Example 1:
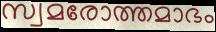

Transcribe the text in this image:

സ്വമരോത്തമാഭം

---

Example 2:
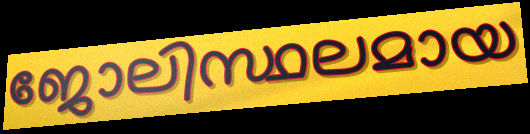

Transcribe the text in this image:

ജോലിസ്ഥലമായ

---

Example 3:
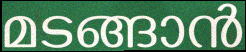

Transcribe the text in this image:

മടങ്ങാൻ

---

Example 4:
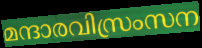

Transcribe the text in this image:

മന്ദാരവിസ്രംസന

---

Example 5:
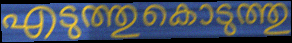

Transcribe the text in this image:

എടുത്തുകൊടുത്തു